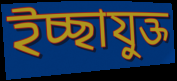
ইচ্ছাযুক্ত